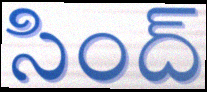
సింద్